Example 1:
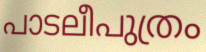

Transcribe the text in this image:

പാടലീപുത്രം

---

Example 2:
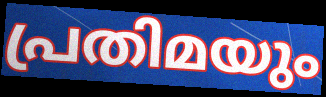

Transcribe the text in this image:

പ്രതിമയും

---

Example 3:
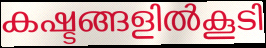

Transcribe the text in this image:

കഷ്ടങ്ങളിൽകൂടി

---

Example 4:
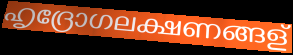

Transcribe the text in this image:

ഹൃദ്രോഗലക്ഷണങ്ങള്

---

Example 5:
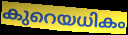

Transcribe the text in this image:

കുറെയധികം